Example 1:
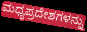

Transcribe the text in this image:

ಮಧ್ಯಪ್ರದೇಶಗಳನ್ನು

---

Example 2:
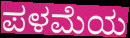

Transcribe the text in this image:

ಪಳಮೆಯ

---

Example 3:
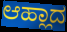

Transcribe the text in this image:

ಆಹ್ಲಾದ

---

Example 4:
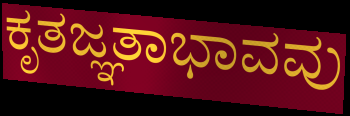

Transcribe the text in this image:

ಕೃತಜ್ಞತಾಭಾವವು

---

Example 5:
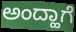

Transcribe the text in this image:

ಅಂದ್ಹಾಗೆ